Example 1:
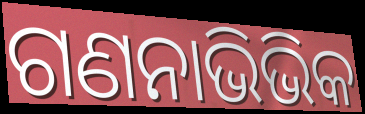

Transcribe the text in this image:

ଗଣନାଭିଭିକ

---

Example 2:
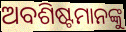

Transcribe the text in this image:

ଅବଶିଷ୍ଟମାନଙ୍କୁ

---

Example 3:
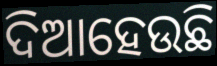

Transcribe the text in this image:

ଦିଆହେଉଛି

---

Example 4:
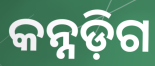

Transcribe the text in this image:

କନ୍ନଡ଼ିଗ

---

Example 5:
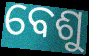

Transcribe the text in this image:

ବେଶୁ